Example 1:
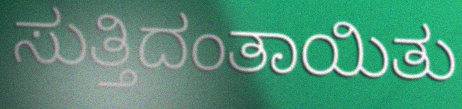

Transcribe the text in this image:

ಸುತ್ತಿದಂತಾಯಿತು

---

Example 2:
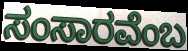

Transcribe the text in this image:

ಸಂಸಾರವೆಂಬ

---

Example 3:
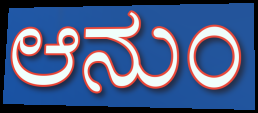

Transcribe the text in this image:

ಆನುಂ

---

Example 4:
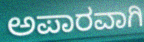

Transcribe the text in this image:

ಅಪಾರವಾಗಿ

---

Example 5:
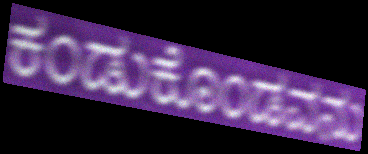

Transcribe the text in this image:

ಕಂಡುಕೊಂಡವನು